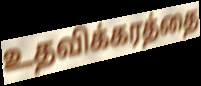
உதவிக்கரத்தை